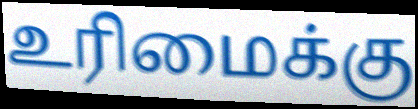
உரிமைக்கு